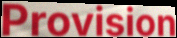
Provision